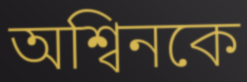
অশ্বিনকে